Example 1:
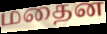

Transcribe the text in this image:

மதைன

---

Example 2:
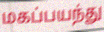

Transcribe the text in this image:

மகப்பயந்து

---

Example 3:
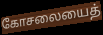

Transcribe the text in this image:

கோசலையைத்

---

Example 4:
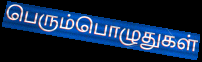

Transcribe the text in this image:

பெரும்பொழுதுகள்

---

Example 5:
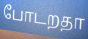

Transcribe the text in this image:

போடறதா